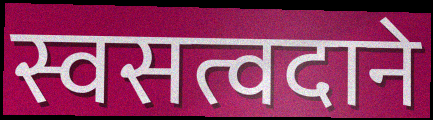
स्वसत्वदाने